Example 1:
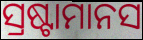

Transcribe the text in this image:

ସ୍ରଷ୍ଟାମାନସ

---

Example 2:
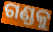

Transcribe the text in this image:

ଗଣ୍ଡକୁ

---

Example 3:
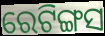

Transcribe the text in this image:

ରେଟିଙ୍ଗସ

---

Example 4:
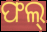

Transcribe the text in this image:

ଫଲ୍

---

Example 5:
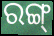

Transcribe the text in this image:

ରଙ୍ଗ୍